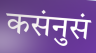
कसंनुसं